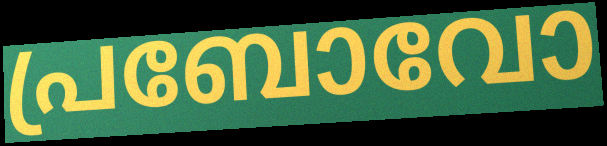
പ്രബോവോ